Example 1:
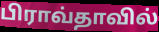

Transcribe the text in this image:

பிராவ்தாவில்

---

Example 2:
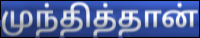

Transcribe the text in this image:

முந்தித்தான்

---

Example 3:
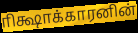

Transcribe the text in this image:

ரிக்ஷாக்காரனின்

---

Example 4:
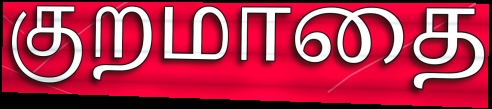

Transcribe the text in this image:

குறமாதை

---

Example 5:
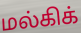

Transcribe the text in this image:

மல்கிக்